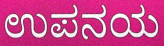
ಉಪನಯ